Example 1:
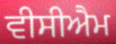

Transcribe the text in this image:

ਵੀਸੀਐਮ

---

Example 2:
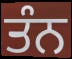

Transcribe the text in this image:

ਤੰਨ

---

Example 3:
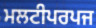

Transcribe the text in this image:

ਮਲਟੀਪਰਪਜ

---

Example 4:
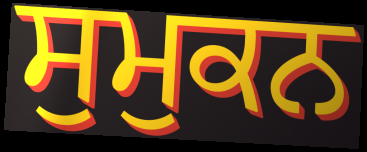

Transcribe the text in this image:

ਸੁਮੁਕਨ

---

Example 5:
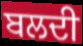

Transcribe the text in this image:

ਬਲਦੀ